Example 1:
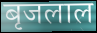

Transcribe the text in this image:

बृजलाल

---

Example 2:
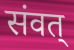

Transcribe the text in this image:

संवत्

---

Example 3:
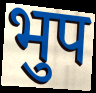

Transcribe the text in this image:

भुप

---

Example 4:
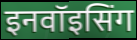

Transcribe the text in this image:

इनवॉइसिंग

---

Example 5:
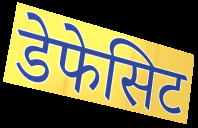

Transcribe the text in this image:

डेफेसिट